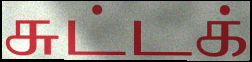
சுட்டக்